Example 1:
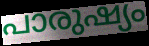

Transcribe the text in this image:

പാരുഷ്യം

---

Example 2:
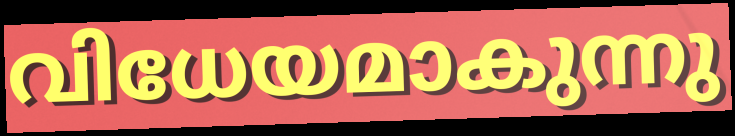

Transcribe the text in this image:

വിധേയമാകുന്നു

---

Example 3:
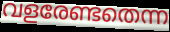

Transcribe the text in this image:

വളരേണ്ടതെന്ന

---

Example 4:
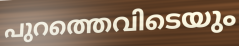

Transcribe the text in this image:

പുറത്തെവിടെയും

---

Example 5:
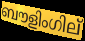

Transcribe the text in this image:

ബൗളിംഗില്